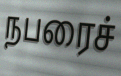
நபரைச்